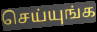
செய்யுங்க